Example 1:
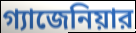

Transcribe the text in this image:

গ্যাজেনিয়ার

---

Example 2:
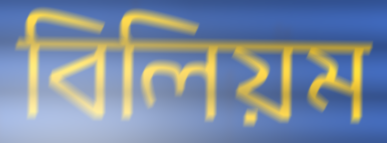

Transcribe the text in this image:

বিলিয়ম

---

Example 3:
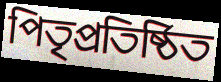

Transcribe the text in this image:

পিতৃপ্রতিষ্ঠিত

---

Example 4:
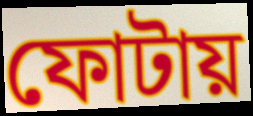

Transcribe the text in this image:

ফোটায়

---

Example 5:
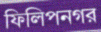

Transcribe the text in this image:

ফিলিপনগর